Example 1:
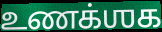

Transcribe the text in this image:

உணக்ஶக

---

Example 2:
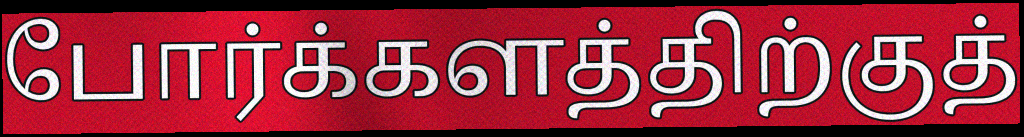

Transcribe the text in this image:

போர்க்களத்திற்குத்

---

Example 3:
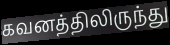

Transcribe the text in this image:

கவனத்திலிருந்து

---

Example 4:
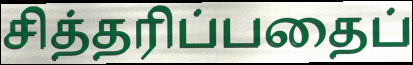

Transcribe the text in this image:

சித்தரிப்பதைப்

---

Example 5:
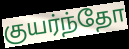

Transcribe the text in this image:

குயர்ந்தோ